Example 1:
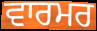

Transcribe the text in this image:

ਵਾਰਮਰ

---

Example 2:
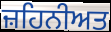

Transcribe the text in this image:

ਜ਼ਹਿਨੀਅਤ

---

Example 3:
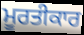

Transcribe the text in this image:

ਮੂਰਤੀਕਾਰ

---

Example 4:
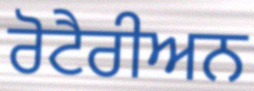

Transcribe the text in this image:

ਰੋਟੈਰੀਅਨ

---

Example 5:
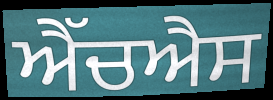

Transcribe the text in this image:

ਐੱਚਐਸ